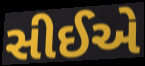
સીઈએ